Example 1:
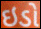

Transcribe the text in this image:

ઇડો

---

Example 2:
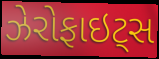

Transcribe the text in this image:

ઝેરોફાઇટ્સ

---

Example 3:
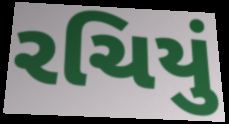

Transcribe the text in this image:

રચિયું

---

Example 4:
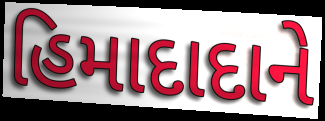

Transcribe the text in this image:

હિમાદાદાને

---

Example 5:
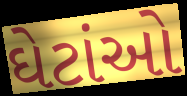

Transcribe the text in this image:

ઘેટાંઓ